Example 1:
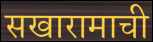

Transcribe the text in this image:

सखारामाची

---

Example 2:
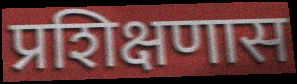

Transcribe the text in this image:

प्रशिक्षणास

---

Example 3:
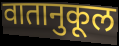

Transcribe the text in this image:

वातानुकूल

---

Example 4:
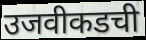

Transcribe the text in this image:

उजवीकडची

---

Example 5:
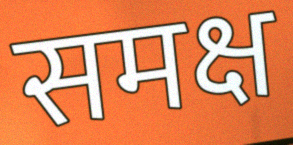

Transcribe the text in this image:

समक्ष